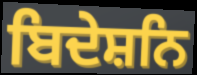
ਬਿਦੇਸ਼ਨਿ